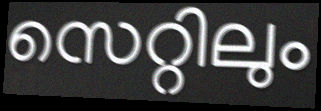
സെറ്റിലും